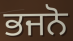
ਭਜਨੋ